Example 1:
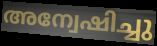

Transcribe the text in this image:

അന്വേഷിച്ചു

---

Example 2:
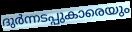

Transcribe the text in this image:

ദുർന്നടപ്പുകാരെയും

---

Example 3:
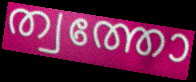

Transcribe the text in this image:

ത്വത്തോ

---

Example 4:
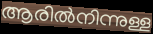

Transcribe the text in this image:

ആരിൽനിന്നുള്ള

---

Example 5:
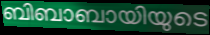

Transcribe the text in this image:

ബിബാബായിയുടെ